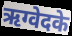
ऋग्वेदके